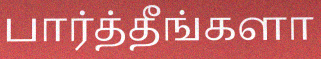
பார்த்தீங்களா